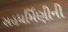
સહધર્મિણીની